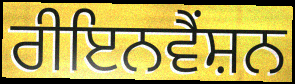
ਰੀਇਨਵੈਂਸ਼ਨ